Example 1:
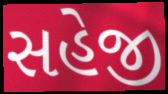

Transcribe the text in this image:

સહેજી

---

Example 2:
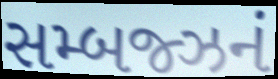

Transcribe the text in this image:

સમ્બજ્ઝનં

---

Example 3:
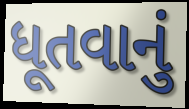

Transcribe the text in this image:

ધૂતવાનું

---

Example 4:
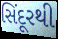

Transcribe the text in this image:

સિંદૂરથી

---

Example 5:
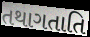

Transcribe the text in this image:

તથાગતાતિ